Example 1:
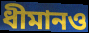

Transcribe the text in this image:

ধীমানও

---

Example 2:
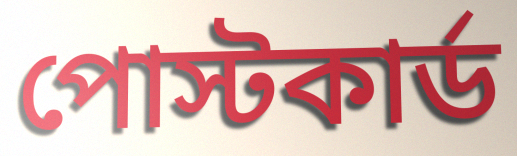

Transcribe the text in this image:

পোস্টকার্ড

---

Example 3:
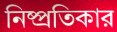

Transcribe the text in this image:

নিষ্প্রতিকার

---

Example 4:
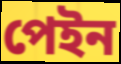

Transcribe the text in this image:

পেইন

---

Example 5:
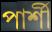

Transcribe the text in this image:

পার্শী